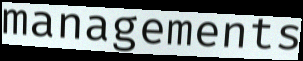
managements